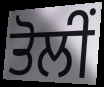
ਤੋਲੀਂ